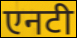
एनटी